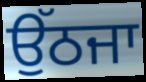
ਉੱਠਜਾ